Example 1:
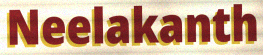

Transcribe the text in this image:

Neelakanth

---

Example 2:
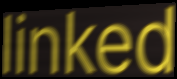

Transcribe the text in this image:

linked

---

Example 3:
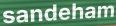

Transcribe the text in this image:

sandeham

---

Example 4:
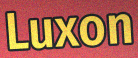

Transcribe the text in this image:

Luxon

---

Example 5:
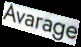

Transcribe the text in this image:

Avarage